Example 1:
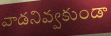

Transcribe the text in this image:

వాడనివ్వకుండా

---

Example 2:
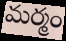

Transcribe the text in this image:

మర్మం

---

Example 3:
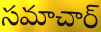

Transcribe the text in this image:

సమాచార్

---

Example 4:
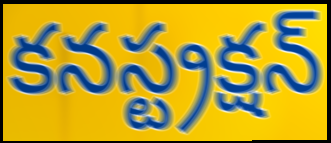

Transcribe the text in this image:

కనస్ట్రక్షన్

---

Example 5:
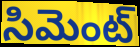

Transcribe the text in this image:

సిమెంట్